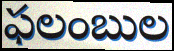
ఫలంబుల